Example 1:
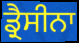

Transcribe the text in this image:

ਡ੍ਰੈਸੀਨਾ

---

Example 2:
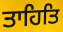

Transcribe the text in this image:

ਤਾਹਿਤਿ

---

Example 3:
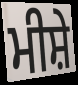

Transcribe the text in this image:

ਮੀਸ਼ੇ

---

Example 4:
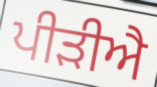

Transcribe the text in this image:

ਪੀੜੀਐ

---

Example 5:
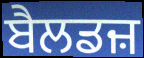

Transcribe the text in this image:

ਬੈਲਡਜ਼